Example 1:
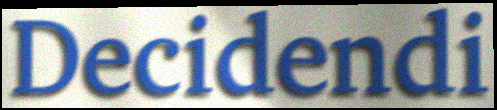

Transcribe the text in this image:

Decidendi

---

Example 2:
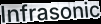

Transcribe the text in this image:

Infrasonic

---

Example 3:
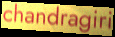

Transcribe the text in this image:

chandragiri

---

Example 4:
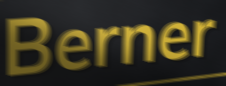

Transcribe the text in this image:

Berner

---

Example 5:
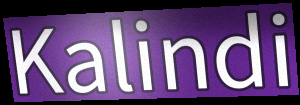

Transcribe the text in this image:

Kalindi